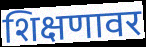
शिक्षणावर